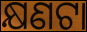
କ୍ଷଣଟା